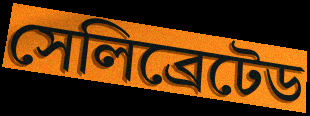
সেলিব্রেটেড